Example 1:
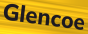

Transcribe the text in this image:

Glencoe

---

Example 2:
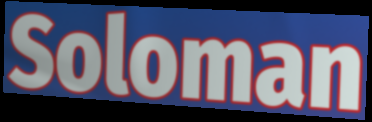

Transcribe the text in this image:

Soloman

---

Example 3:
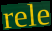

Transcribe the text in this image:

rele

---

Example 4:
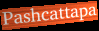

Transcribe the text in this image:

Pashcattapa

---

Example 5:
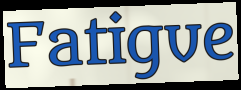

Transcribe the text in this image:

Fatigue